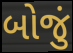
બોજું